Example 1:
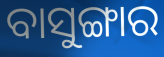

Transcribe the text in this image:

ବାସୁଙ୍ଗାର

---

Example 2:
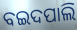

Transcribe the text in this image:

ବଇଦପାଲି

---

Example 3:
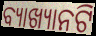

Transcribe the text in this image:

ବ୍ୟାଖ୍ୟାନଟି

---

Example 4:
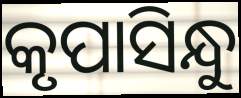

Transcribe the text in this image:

କୃପାସିନ୍ଧୁ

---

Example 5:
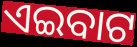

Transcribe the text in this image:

ଏଇବାଟ